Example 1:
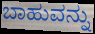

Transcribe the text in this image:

ಬಾಹುವನ್ನು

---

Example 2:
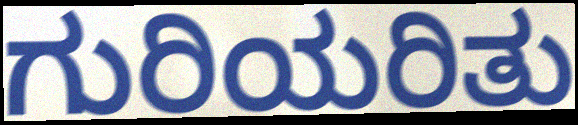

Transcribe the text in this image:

ಗುರಿಯರಿತು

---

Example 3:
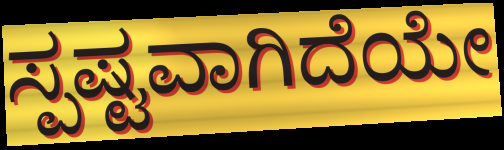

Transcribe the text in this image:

ಸ್ಪಷ್ಟವಾಗಿದೆಯೇ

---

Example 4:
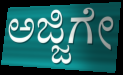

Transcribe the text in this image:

ಅಜ್ಜಿಗೇ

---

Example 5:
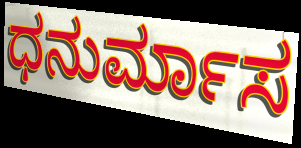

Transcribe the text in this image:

ಧನುರ್ಮಾಸ